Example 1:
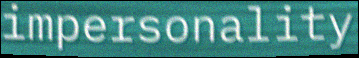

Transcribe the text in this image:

impersonality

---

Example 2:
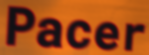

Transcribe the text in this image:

Pacer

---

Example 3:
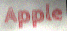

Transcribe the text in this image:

Apple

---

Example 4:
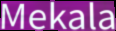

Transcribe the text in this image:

Mekala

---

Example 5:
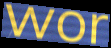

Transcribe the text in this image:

wor